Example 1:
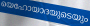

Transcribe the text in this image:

യെഹോയാദയുടെയും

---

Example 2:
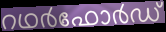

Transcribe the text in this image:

റഥർഫോർഡ്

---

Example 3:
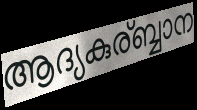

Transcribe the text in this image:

ആദ്യകുര്ബ്ബാന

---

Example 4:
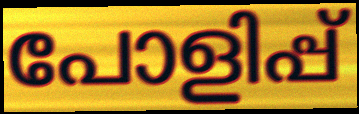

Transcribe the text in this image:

പോളിപ്പ്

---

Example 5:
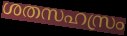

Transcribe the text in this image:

ശതസഹസ്രം